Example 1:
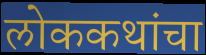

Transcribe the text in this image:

लोककथांचा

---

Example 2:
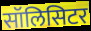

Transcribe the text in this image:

सॉलिसिटर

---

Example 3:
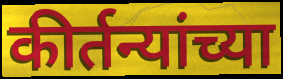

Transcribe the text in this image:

कीर्तन्यांच्या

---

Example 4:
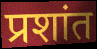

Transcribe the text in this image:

प्रशांत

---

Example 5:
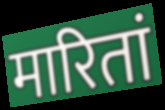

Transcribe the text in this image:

मारितां